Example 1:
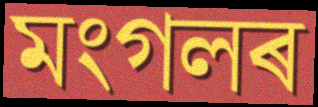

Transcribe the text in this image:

মংগলৰ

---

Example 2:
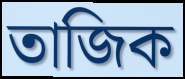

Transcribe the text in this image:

তাজিক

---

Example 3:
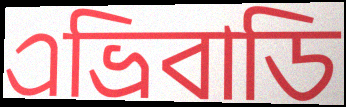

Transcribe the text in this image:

এভ্ৰিবাডি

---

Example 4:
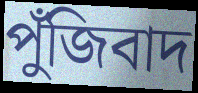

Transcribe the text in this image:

পুঁজিবাদ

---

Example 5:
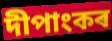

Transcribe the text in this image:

দীপাংকৰ